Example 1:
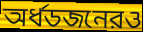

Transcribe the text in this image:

অর্ধডজনেরও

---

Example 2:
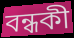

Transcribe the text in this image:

বন্ধকী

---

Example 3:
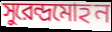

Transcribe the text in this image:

সুরেন্দ্রমোহন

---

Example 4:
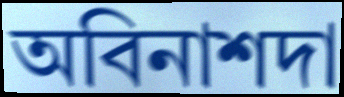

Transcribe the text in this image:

অবিনাশদা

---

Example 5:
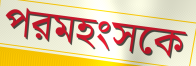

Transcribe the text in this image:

পরমহংসকে